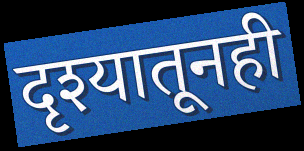
दृश्यातूनही